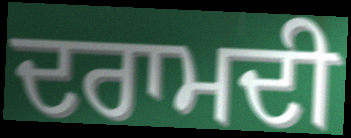
ਦਰਾਮਦੀ